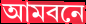
আমবনে